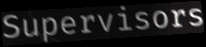
Supervisors